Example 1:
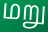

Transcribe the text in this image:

மறு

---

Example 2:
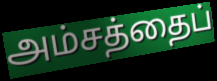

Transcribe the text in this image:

அம்சத்தைப்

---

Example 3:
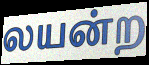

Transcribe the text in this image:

லயன்ற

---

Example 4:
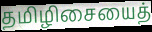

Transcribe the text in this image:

தமிழிசையைத்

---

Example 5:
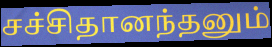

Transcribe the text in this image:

சச்சிதானந்தனும்